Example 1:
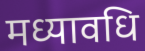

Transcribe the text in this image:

मध्यावधि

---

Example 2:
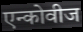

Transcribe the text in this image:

एन्कोवीज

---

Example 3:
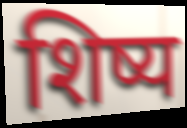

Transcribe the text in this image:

शिष्य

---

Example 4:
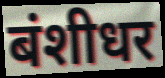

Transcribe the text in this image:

बंशीधर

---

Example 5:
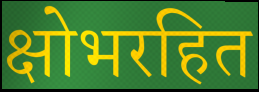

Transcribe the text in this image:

क्षोभरहित